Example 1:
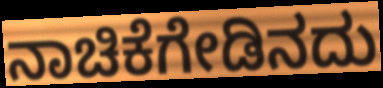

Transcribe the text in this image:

ನಾಚಿಕೆಗೇಡಿನದು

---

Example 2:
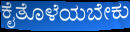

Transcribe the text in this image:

ಕೈತೊಳೆಯಬೇಕು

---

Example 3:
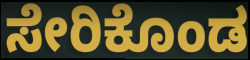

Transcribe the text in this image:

ಸೇರಿಕೊಂಡ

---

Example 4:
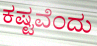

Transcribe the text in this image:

ಕಷ್ಟವೆಂದು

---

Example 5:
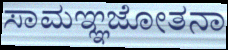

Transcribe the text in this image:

ಸಾಮಞ್ಞಜೋತನಾ